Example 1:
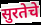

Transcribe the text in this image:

सुरतेचे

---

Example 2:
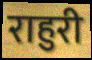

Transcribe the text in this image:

राहुरी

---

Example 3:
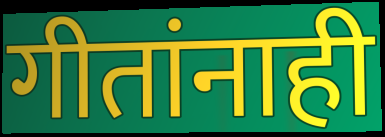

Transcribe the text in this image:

गीतांनाही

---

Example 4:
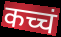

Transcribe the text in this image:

कच्चं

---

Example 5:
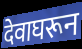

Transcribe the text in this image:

देवाघरून